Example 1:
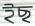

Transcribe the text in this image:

ইছ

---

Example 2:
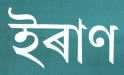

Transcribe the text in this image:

ইৰাণ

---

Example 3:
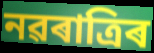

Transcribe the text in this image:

নৱৰাত্ৰিৰ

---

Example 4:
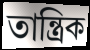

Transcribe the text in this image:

তান্ত্ৰিক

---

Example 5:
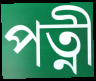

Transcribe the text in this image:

পত্নী